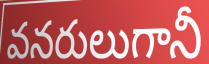
వనరులుగానీ